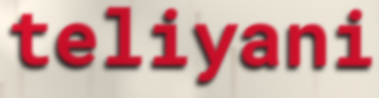
teliyani